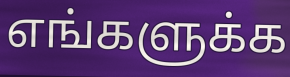
எங்களுக்க